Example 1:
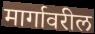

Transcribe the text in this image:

मार्गावरील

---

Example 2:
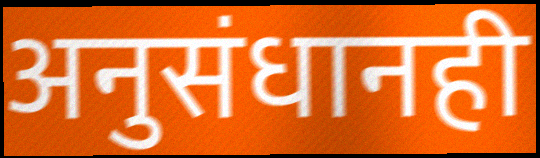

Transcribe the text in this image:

अनुसंधानही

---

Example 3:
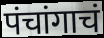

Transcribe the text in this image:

पंचांगाचं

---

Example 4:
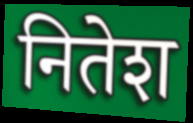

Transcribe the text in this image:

नितेश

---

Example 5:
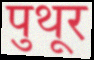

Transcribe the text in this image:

पुथूर